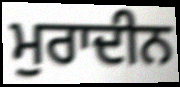
ਮੁਰਾਦੀਨ